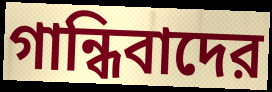
গান্ধিবাদের